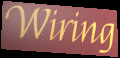
Wiring